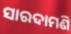
ସାରଦାମଣି